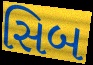
સિબ